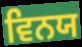
ਵਿਨਯ